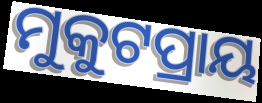
ମୁକୁଟପ୍ରାୟ